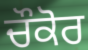
ਚੌਕੋਰ